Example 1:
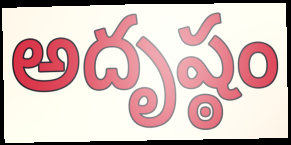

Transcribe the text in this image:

అదృష్ఠం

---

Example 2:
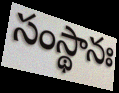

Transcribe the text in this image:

సంస్థానః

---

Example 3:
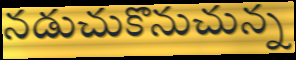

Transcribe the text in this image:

నడుచుకొనుచున్న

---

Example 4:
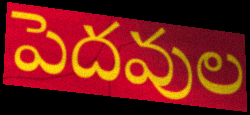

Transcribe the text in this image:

పెదవుల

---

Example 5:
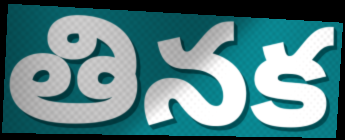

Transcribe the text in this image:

తినక